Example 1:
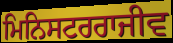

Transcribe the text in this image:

ਮਿਨਿਸਟਰਰਾਜੀਵ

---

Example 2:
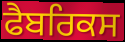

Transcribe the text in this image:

ਫੈਬਰਿਕਸ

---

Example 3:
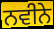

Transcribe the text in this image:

ਨਵੀਨੇ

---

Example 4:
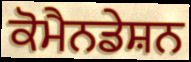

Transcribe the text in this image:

ਕੋਮੈਨਡੇਸ਼ਨ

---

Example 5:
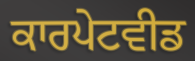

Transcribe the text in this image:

ਕਾਰਪੇਟਵੀਡ